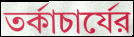
তর্কাচার্যের